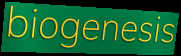
biogenesis